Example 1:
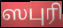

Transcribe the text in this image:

ஸபுரி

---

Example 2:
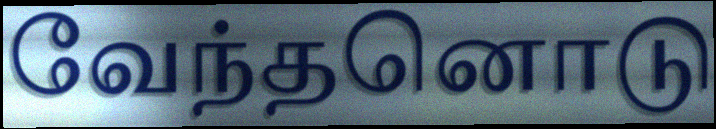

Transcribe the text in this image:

வேந்தனொடு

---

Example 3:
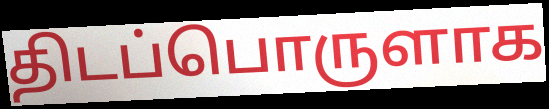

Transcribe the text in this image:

திடப்பொருளாக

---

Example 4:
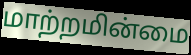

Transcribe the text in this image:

மாற்றமின்மை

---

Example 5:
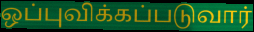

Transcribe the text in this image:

ஒப்புவிக்கப்படுவார்